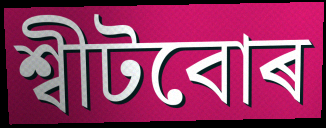
শ্বীটবোৰ